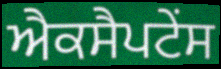
ਐਕਸੈਪਟੇਂਸ